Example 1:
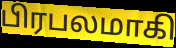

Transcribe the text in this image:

பிரபலமாகி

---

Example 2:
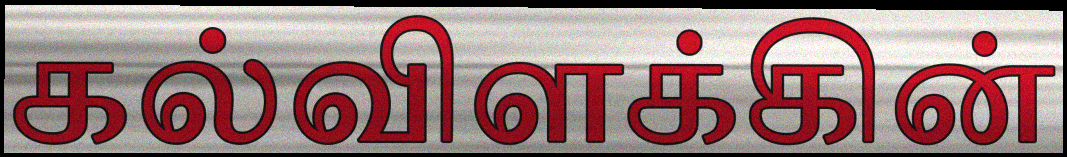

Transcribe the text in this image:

கல்விளக்கின்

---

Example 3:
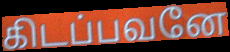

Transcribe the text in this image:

கிடப்பவனே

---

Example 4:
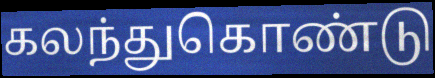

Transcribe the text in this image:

கலந்துகொண்டு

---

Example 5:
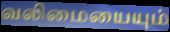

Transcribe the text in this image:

வலிமையையும்